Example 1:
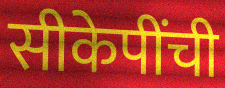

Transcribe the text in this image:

सीकेपींची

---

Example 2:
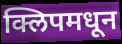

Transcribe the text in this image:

क्लिपमधून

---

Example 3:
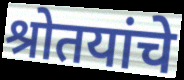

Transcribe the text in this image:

श्रोतयांचे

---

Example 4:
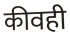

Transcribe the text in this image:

कीवही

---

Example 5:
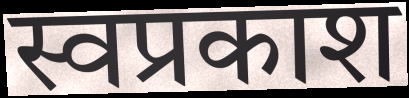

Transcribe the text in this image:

स्वप्रकाश